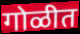
गोळीत